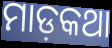
ମାଡ଼କଥା